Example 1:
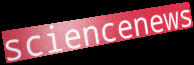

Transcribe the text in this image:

sciencenews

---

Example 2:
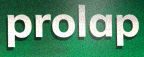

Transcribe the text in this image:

prolap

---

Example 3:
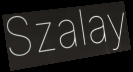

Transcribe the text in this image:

Szalay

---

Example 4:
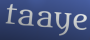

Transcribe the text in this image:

taaye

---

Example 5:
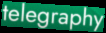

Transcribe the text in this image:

telegraphy